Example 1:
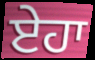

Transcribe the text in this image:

ਏਹਾ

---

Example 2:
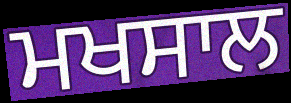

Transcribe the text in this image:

ਮਖਸਾਲ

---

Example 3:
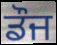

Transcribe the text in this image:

ਡੌਜ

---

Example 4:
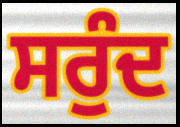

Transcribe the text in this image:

ਸਰੁੰਦ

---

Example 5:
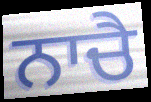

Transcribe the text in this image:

ਨਾਚੈ